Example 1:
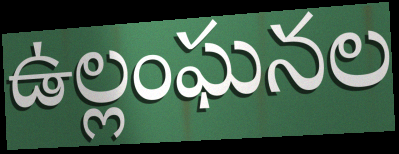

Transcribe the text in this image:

ఉల్లంఘనల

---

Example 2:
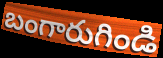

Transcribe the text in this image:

బంగారుగిండి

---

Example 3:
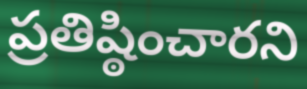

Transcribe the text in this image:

ప్రతిష్ఠించారని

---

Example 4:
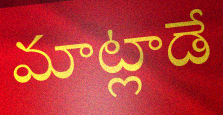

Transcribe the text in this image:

మాట్లాడే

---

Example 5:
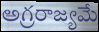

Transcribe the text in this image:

అగ్రరాజ్యమే